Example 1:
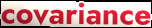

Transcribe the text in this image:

covariance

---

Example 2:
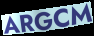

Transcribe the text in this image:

ARGCM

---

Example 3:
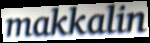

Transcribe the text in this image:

makkalin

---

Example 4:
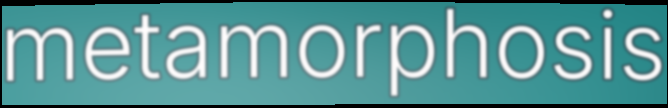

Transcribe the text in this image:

metamorphosis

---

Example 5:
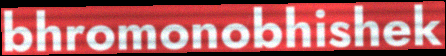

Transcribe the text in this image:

bhromonobhishek